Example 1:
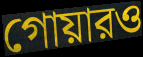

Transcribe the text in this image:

গোয়ারও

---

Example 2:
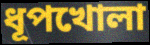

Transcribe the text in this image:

ধূপখোলা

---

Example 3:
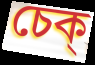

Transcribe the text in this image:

চেক্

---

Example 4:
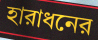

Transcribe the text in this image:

হারাধনের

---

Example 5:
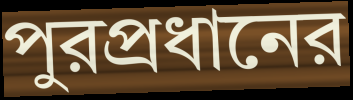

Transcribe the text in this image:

পুরপ্রধানের